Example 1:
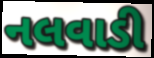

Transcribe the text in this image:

નલવાડી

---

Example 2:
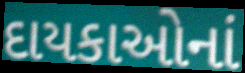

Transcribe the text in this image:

દાયકાઓનાં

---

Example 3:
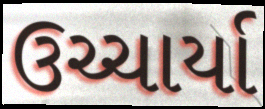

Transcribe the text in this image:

ઉચ્ચાર્યા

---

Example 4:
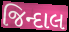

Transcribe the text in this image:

જિન્દાલ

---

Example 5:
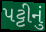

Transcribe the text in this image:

પટ્ટીનું